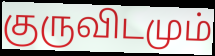
குருவிடமும்